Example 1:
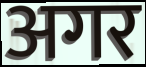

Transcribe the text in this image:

अगर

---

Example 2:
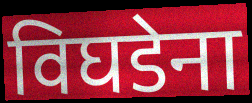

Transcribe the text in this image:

विघडेना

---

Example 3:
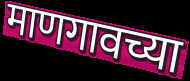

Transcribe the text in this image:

माणगावच्या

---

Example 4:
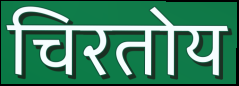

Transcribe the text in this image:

चिरतोय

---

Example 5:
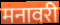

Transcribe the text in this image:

मनावरी